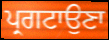
ਪ੍ਰਗਟਾਉਣਾ